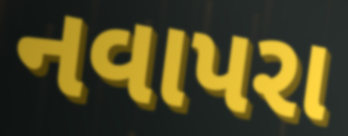
નવાપરા